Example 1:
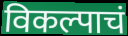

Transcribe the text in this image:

विकल्पाचं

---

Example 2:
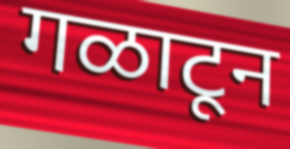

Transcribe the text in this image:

गळाटून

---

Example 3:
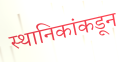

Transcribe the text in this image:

स्थानिकांकडून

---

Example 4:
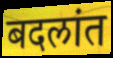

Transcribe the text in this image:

बदलांत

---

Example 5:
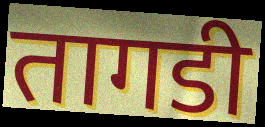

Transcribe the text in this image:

तागडी